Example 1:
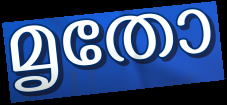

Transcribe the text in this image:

മൃതോ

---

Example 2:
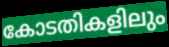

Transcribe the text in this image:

കോടതികളിലും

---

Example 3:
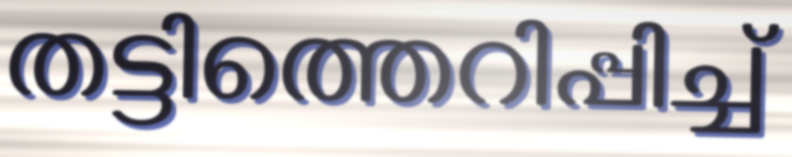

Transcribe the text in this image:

തട്ടിത്തെറിപ്പിച്ച്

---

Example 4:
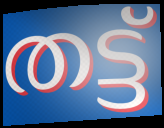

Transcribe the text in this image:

തട്ട്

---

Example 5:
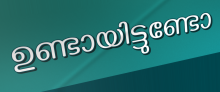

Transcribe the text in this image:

ഉണ്ടായിട്ടുണ്ടോ